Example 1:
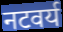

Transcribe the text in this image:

नटवर्य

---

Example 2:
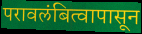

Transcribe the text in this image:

परावलंबित्वापासून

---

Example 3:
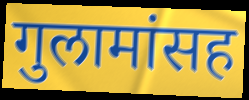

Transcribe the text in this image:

गुलामांसह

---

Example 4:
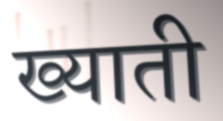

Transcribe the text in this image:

ख्याती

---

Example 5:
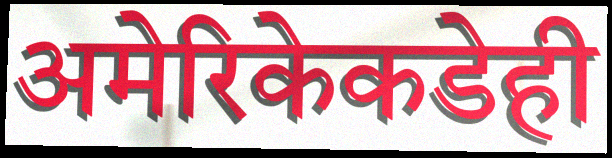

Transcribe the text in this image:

अमेरिकेकडेही